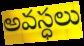
అవస్ధలు